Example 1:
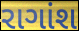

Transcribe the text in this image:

રાગાંશ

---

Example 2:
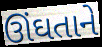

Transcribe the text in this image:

ઊંઘતાને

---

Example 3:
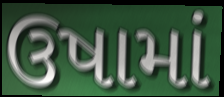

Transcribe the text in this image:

ઉષામાં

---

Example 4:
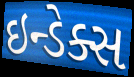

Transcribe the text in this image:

ઇન્ડેક્સ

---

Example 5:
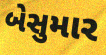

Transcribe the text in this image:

બેસુમાર